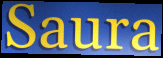
Saura